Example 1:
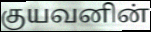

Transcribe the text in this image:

குயவனின்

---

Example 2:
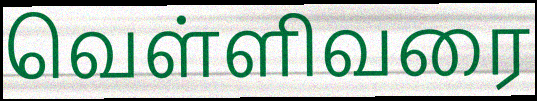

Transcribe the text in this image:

வெள்ளிவரை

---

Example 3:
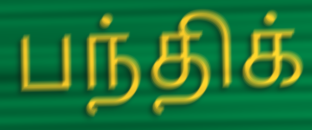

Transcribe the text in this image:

பந்திக்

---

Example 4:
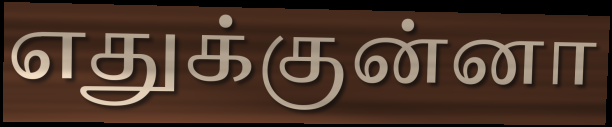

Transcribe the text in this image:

எதுக்குன்னா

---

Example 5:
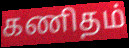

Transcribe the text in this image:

கணிதம்